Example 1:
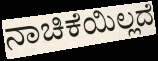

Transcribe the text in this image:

ನಾಚಿಕೆಯಿಲ್ಲದೆ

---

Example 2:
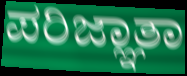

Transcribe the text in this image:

ಪರಿಜ್ಞಾತಾ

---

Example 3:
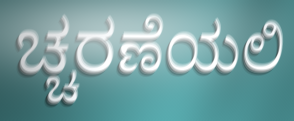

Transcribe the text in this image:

ಚ್ಚರಣೆಯಲಿ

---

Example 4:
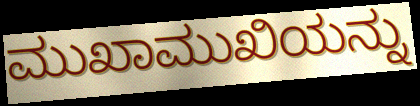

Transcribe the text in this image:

ಮುಖಾಮುಖಿಯನ್ನು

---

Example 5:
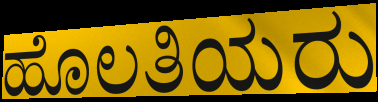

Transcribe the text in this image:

ಹೊಲತಿಯರು